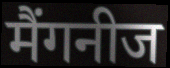
मैंगनीज